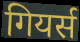
गियर्स